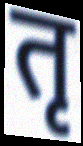
तृ